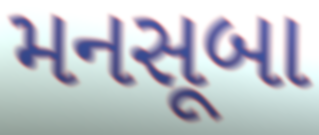
મનસૂબા